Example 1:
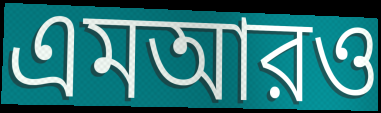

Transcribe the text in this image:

এমআরও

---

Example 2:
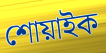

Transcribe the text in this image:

শোয়াইক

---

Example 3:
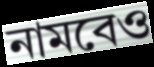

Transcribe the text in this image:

নামবেও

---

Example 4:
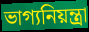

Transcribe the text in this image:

ভাগ্যনিয়ন্ত্রা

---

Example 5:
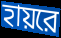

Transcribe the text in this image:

হায়রে